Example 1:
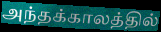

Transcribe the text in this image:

அந்தக்காலத்தில்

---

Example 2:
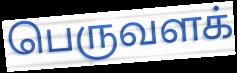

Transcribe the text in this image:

பெருவளக்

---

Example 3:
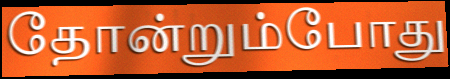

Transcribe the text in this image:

தோன்றும்போது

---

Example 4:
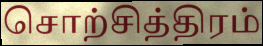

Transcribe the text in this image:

சொற்சித்திரம்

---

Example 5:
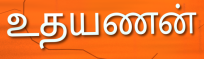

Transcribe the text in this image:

உதயணன்